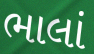
ભાલાં